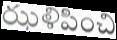
ఝళిపించి